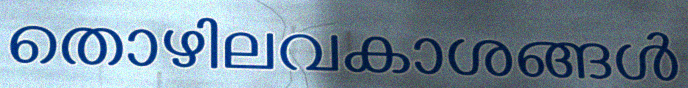
തൊഴിലവകാശങ്ങൾ